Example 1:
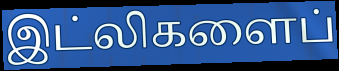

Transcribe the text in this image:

இட்லிகளைப்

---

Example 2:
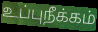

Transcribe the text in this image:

உப்புநீக்கம்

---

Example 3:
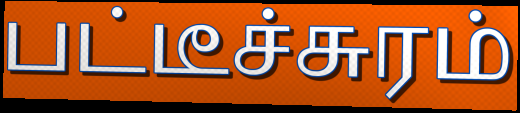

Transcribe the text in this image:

பட்டீச்சுரம்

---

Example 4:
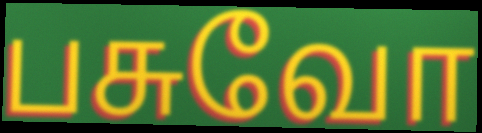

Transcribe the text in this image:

பசுவோ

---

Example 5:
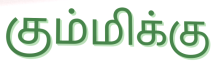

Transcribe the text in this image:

கும்மிக்கு